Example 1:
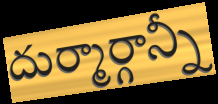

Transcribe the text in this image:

దుర్మార్గాన్నీ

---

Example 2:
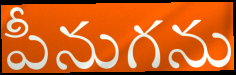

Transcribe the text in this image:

పీనుగను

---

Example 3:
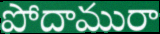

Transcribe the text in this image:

పోదామురా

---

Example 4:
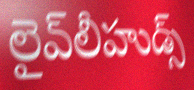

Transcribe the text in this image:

లైవ్‌లీహుడ్స్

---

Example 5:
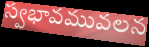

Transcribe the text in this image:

స్వభావమువలన